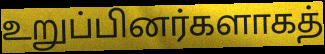
உறுப்பினர்களாகத்